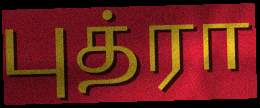
புத்ரா